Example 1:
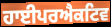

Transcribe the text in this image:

ਹਾਈਪਰਐਕਟਿਵ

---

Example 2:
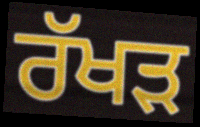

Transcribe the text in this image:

ਰੱਖੜ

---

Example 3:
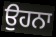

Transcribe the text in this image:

ਉਹਨਾ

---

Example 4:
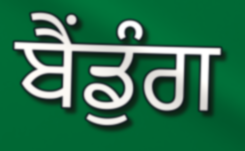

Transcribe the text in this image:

ਬੈਂਡੁੰਗ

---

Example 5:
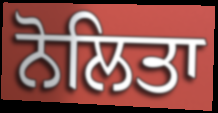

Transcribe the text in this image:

ਨੋਲਿਤਾ